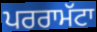
ਪਰਰਾਮੱਟਾ